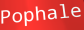
Pophale